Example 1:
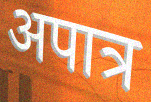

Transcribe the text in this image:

अपात्र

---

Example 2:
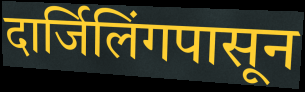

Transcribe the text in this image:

दार्जिलिंगपासून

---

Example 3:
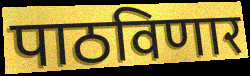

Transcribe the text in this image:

पाठविणार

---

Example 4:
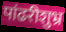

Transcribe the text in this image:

पांढरीशुभ्र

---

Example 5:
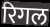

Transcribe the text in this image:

रिगल